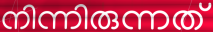
നിന്നിരുന്നത്